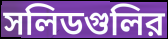
সলিডগুলির